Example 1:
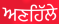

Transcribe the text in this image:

ਅਣਹਿੱਲੇ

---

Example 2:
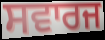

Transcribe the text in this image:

ਸਵਾਰਜ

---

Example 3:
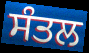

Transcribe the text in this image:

ਸੰਤਲ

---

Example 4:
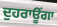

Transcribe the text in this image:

ਦੁਹਰਾਊਂਗਾ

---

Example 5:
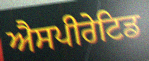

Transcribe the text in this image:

ਐਸਪੀਰੇਟਿਡ